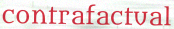
contrafactual